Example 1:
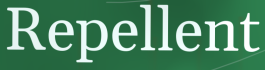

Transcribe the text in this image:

Repellent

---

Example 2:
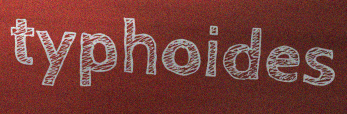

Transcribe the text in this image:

typhoides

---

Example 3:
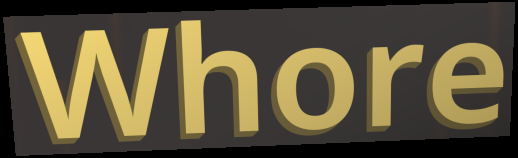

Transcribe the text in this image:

Whore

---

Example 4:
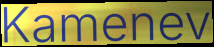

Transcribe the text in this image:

Kamenev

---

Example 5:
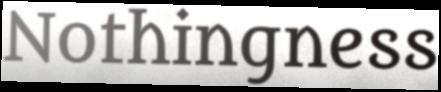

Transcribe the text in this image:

Nothingness